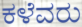
ಕಳೆವರು